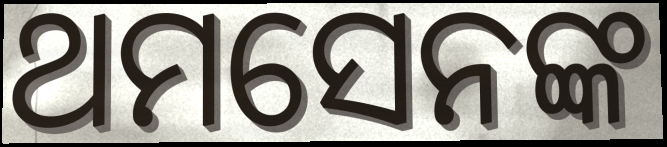
ଥମସେନଙ୍କ